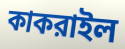
কাকরাইল